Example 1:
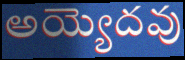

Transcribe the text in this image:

అయ్యెదవు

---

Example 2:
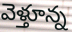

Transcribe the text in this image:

వెళ్తూన్న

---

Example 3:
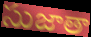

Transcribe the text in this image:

సుజాతా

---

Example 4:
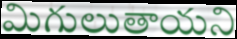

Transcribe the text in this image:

మిగులుతాయని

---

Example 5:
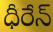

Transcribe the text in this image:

ధీరేన్